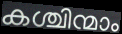
കശ്ചിന്മാം